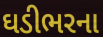
ઘડીભરના